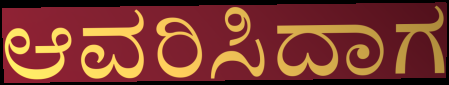
ಆವರಿಸಿದಾಗ